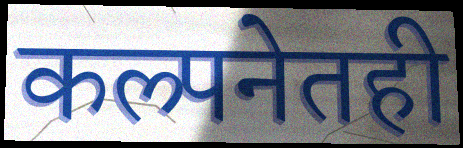
कल्पनेतही